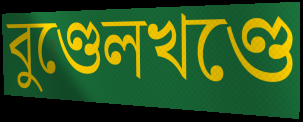
বুণ্ডেলখণ্ডে